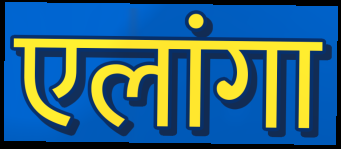
एलांगा